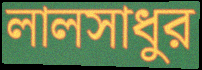
লালসাধুর